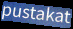
pustakat